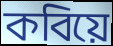
কবিয়ে